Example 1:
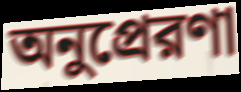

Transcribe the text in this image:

অনুপ্রেরণা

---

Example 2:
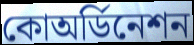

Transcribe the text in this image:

কোঅর্ডিনেশন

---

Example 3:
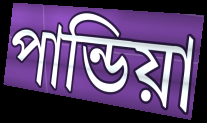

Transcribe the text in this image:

পান্ডিয়া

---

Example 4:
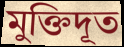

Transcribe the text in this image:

মুক্তিদূত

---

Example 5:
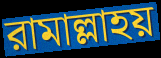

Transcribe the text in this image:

রামাল্লাহয়